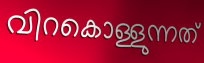
വിറകൊള്ളുന്നത്